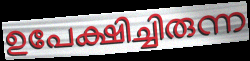
ഉപേക്ഷിച്ചിരുന്ന